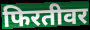
फिरतीवर